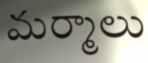
మర్మాలు